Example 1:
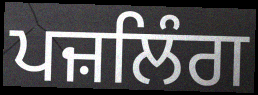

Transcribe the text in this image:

ਪਜ਼ਲਿੰਗ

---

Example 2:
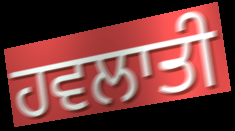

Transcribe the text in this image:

ਹਵਲਾਤੀ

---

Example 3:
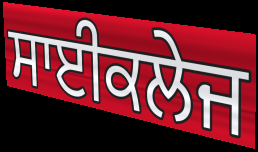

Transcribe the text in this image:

ਸਾਈਕਲੇਜ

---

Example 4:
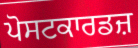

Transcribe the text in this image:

ਪੋਸਟਕਾਰਡਜ਼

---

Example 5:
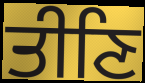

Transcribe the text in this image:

ਤੀਣਿ